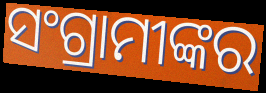
ସଂଗ୍ରାମୀଙ୍କର